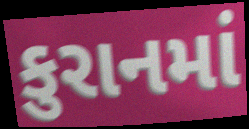
કુરાનમાં